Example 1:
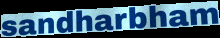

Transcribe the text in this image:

sandharbham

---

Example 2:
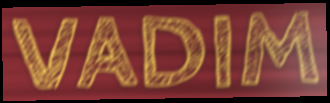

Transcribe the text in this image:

VADIM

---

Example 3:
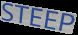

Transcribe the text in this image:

STEEP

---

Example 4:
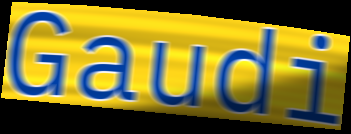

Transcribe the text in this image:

Gaudi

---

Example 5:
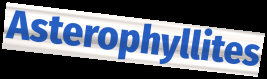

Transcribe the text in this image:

Asterophyllites